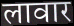
लावार